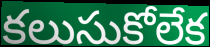
కలుసుకోలేక